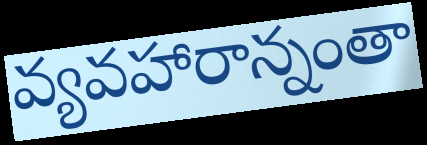
వ్యవహారాన్నంతా